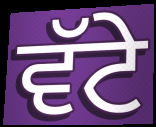
ਵੱਟੇ